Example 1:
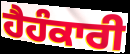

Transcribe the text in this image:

ਹੈਹੰਕਾਰੀ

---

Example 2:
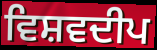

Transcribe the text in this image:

ਵਿਸ਼ਵਦੀਪ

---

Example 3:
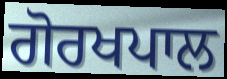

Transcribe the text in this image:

ਗੋਰਖਪਾਲ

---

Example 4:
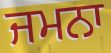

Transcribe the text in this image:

ਜਮਨਾ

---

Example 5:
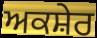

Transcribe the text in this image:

ਅਕਸ਼ੇਰ